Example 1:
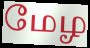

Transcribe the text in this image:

மேழ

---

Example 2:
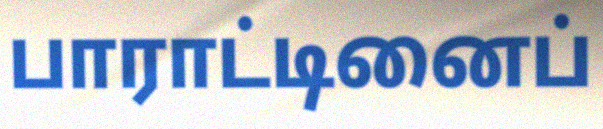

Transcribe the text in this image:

பாராட்டினைப்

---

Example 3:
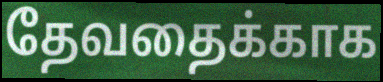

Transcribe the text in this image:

தேவதைக்காக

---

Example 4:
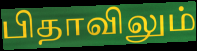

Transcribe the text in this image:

பிதாவிலும்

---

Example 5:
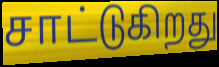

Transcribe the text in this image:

சாட்டுகிறது